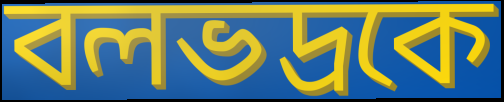
বলভদ্রকে